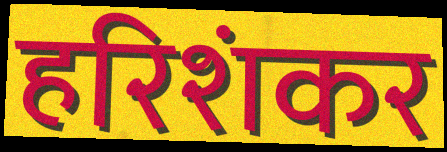
हरिशंकर